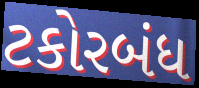
ટકોરબંધ